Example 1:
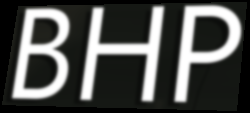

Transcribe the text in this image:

BHP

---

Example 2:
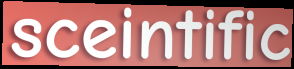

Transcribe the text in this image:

sceintific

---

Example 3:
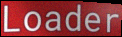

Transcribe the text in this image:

Loader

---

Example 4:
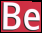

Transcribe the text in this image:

Be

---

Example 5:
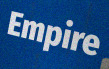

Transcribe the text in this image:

Empire